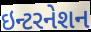
ઇન્ટરનેશન